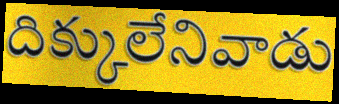
దిక్కులేనివాడు